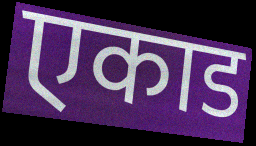
एकाड